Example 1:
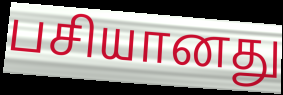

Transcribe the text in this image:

பசியானது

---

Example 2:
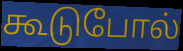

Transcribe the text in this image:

கூடுபோல்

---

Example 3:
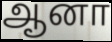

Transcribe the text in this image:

ஆனா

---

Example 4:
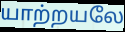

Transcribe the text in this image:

யாற்றயலே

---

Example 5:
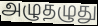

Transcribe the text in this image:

அழுதழுது